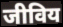
जीविय